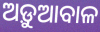
ଅଡ଼ୁଆବାଳ